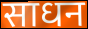
साधन